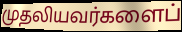
முதலியவர்களைப்